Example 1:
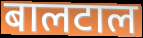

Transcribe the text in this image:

बालटाल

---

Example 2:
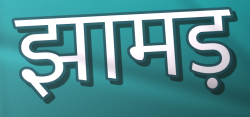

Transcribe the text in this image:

झामड़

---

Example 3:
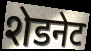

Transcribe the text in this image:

शेडनेट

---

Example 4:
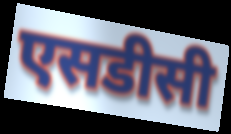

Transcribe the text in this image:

एसडीसी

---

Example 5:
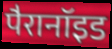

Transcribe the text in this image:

पैरानॉइड